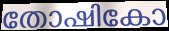
തോഷികോ